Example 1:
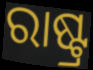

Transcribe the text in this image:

ରାଷ୍ଟ୍ର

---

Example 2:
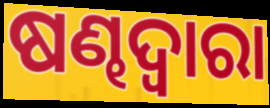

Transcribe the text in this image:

ଷଣ୍ଢଦ୍ୱାରା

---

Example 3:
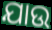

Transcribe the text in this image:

ଯାଉ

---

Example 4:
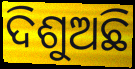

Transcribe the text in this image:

ଦିଶୁଅଛି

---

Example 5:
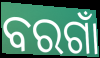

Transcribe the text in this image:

ବରଗାଁ